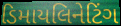
ડિમાયલિનેટિંગ